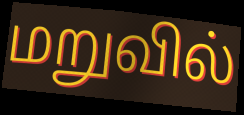
மறுவில்